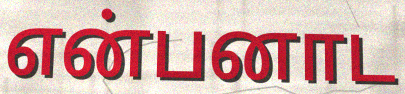
என்பனாட